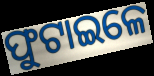
ଫୁଟାଇଳେ